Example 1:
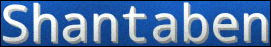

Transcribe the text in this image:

Shantaben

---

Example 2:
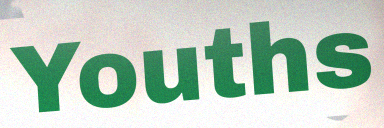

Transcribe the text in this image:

Youths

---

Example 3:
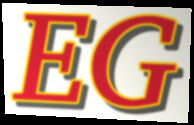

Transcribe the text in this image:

EG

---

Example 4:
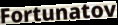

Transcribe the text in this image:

Fortunatov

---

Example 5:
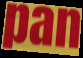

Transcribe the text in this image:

pan